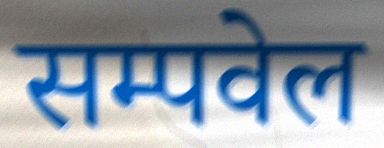
सम्पवेल